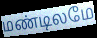
மண்டிலமே